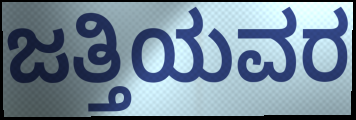
ಜತ್ತಿಯವರ